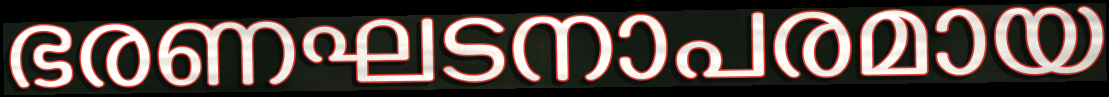
ഭരണഘടനാപരമായ